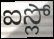
ఐస్లో